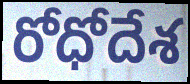
రోధోదేశ